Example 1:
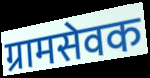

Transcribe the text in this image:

ग्रामसेवक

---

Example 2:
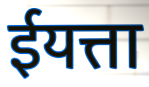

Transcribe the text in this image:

ईयत्ता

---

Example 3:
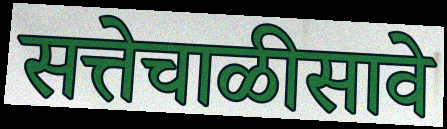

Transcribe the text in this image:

सत्तेचाळीसावे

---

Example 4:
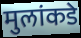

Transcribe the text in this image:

मुलांकडे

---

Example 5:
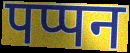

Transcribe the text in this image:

पप्पन